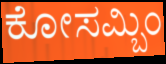
ಕೋಸಮ್ಬಿಂ